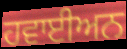
ਹਵਾਈਅਨ